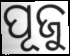
ପୂଜୁ